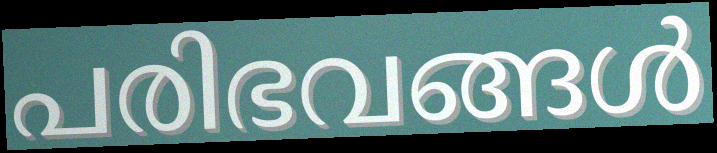
പരിഭവങ്ങൾ